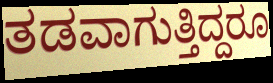
ತಡವಾಗುತ್ತಿದ್ದರೂ